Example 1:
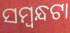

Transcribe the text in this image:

ସମ୍ବନ୍ଧଟା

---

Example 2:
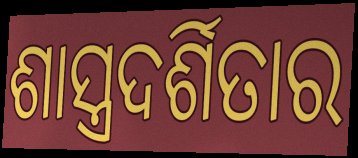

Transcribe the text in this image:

ଶାସ୍ତ୍ରଦର୍ଶିତାର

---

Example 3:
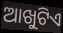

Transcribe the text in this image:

ଆଖୁଟିଏ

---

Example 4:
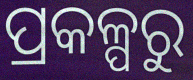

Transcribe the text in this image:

ପ୍ରକଳ୍ପରୁ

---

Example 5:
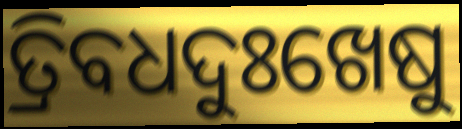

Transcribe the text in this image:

ତ୍ରିବଧଦୁଃଖେଷୁ